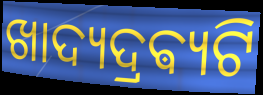
ଖାଦ୍ୟଦ୍ରଵ୍ୟଟି